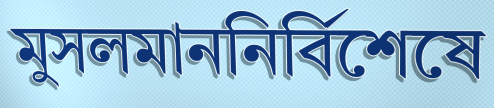
মুসলমাননির্বিশেষে